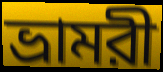
ভ্রামরী